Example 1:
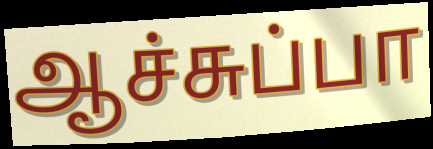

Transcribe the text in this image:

ஆச்சுப்பா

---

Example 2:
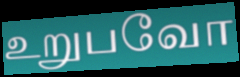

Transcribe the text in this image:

உறுபவோ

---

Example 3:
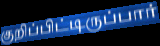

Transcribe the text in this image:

குறிப்பிட்டிருப்பார்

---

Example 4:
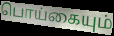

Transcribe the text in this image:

பொய்கையும்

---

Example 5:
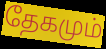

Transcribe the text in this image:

தேகமும்